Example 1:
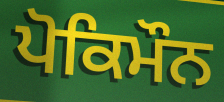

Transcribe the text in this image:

ਪੋਕਿਮੌਨ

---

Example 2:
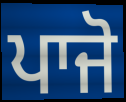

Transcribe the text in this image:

ਪਾਜੋ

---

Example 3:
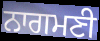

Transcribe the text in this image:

ਨਾਗਮਣੀ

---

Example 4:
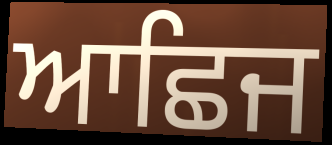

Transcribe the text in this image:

ਆਛਿਜ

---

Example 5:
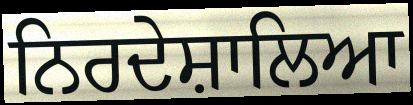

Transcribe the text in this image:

ਨਿਰਦੇਸ਼ਾਲਿਆ